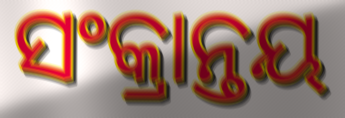
ସଂକ୍ରାନ୍ତୟ